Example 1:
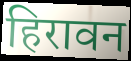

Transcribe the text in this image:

हिरावन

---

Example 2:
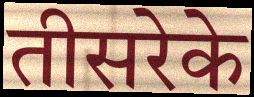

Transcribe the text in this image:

तीसरेके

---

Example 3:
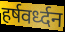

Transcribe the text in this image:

हर्षवर्ध्दन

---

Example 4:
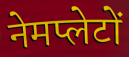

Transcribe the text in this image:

नेमप्लेटों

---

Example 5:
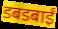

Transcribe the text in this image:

डबडबाईं